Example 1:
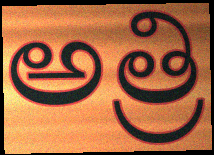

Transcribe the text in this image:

అత్రి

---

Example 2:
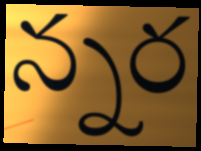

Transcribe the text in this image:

న్నర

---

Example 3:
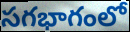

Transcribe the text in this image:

సగభాగంలో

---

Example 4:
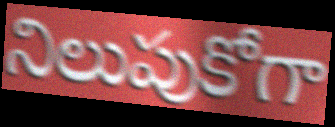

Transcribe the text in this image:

నిలుపుకోగా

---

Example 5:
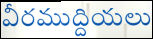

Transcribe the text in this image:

వీరముద్దియలు